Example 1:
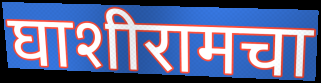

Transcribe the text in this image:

घाशीरामचा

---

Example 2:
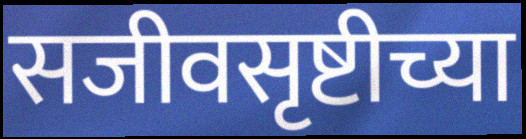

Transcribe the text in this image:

सजीवसृष्टीच्या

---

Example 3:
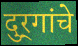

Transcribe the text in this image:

दुर्गांचे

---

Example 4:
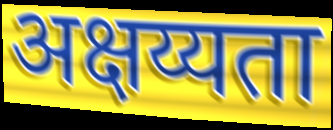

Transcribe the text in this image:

अक्षय्यता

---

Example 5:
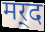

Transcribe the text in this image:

मर्द